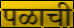
पळाची